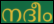
നദീം